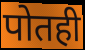
पोतही